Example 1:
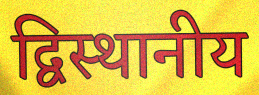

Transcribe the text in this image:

द्विस्थानीय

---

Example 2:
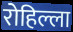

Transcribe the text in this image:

रोहिल्ला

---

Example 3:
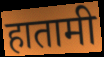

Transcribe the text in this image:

हातामी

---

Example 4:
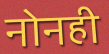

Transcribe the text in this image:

नोनही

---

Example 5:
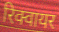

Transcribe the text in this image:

रिक्वायर